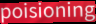
poisioning